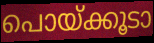
പൊയ്ക്കൂടാ